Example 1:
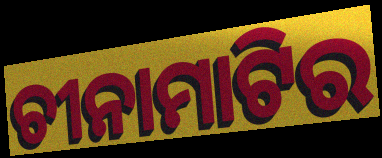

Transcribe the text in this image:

ଚୀନାମାଟିର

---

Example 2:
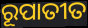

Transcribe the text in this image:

ରୂପାତୀତ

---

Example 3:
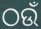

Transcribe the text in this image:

ଠଉଁ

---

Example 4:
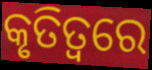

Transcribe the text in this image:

କୃତିତ୍ୱରେ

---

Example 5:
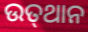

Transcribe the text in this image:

ଉତ୍‌ଥାନ